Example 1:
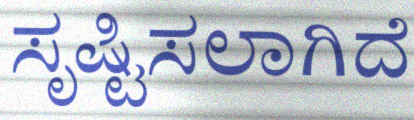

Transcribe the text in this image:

ಸೃಷ್ಟಿಸಲಾಗಿದೆ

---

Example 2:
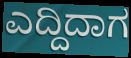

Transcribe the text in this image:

ಎದ್ದಿದಾಗ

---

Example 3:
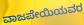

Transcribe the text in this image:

ವಾಜಪೇಯಿಯವರ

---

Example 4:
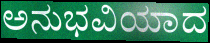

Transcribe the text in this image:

ಅನುಭವಿಯಾದ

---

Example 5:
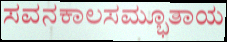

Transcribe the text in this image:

ಸವನಕಾಲಸಮ್ಭೂತಾಯ